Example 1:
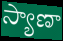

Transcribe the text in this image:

స్యాణా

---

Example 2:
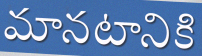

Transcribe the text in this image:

మానటానికి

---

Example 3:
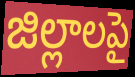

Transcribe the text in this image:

జిల్లాలపై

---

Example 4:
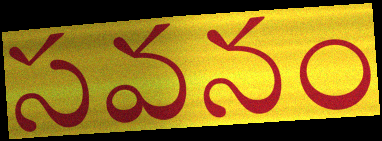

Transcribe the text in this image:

సవనం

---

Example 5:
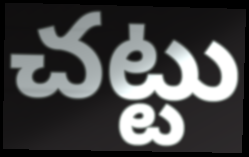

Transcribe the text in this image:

చట్టు